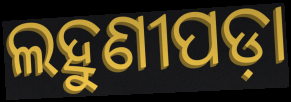
ଲହୁଣୀପଡ଼ା